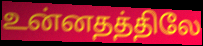
உன்னதத்திலே